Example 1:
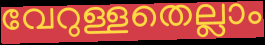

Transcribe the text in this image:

വേറുള്ളതെല്ലാം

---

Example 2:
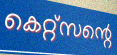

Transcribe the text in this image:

കെറ്റ്സന്റെ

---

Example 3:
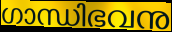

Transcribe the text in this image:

ഗാന്ധിഭവനു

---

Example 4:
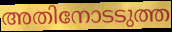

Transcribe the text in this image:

അതിനോടടുത്ത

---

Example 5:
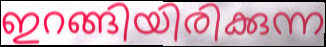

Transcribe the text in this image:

ഇറങ്ങിയിരിക്കുന്ന